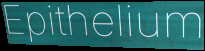
Epithelium